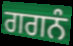
ਗਗਨੰ